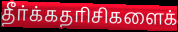
தீர்க்கதரிசிகளைக்